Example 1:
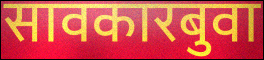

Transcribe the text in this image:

सावकारबुवा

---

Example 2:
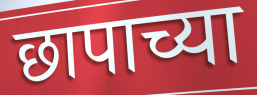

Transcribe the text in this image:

छापाच्या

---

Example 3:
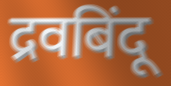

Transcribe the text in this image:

द्रवबिंदू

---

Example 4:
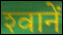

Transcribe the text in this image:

श्वानें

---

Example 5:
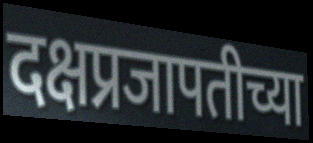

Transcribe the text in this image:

दक्षप्रजापतीच्या